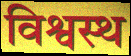
विश्वस्थ